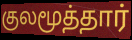
குலமூத்தார்